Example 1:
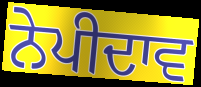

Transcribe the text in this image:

ਨੇਪੀਦਾਵ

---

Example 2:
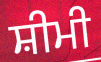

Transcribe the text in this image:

ਸ਼ੀਮੀ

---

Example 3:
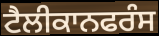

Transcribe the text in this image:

ਟੈਲੀਕਾਨਫਰੰਸ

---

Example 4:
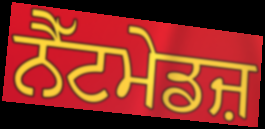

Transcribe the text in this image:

ਨੈੱਟਮੇਡਜ਼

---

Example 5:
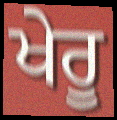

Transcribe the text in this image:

ਖੇਰੂ